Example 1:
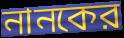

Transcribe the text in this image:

নানকের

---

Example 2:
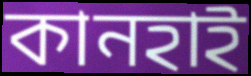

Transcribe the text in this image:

কানহাই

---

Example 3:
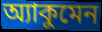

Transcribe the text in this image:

অ্যাকুমেন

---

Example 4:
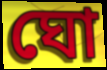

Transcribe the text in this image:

ঘো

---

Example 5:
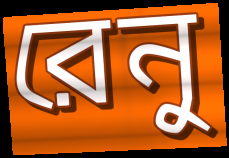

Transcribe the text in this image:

রেনু